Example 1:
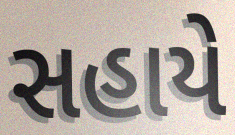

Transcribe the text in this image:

સહાયે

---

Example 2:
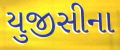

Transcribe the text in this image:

યુજીસીના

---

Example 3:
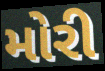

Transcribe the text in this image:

મોરી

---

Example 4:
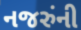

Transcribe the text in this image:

નજરુંની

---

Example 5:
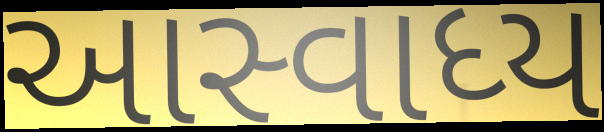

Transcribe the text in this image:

આસ્વાધ્ય